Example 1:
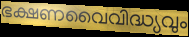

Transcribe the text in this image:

ഭക്ഷണവൈവിദ്ധ്യവും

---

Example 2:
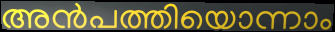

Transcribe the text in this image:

അൻപത്തിയൊന്നാം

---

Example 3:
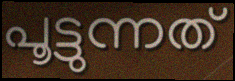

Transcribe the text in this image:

പൂട്ടുന്നത്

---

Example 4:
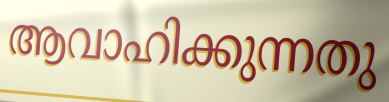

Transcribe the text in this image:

ആവാഹിക്കുന്നതു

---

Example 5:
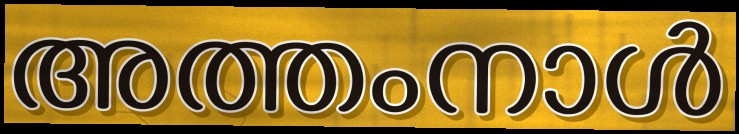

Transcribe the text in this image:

അത്തംനാൾ